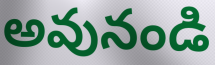
అవునండి